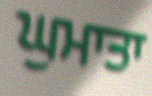
ਘੁਮਾਤਾ